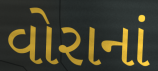
વોરાનાં